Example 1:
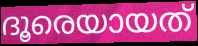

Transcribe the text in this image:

ദൂരെയായത്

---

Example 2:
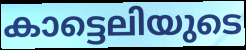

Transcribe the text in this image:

കാട്ടെലിയുടെ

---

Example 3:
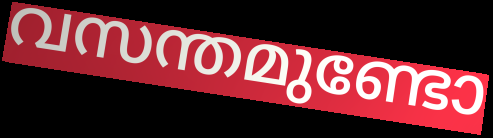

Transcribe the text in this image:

വസന്തമുണ്ടോ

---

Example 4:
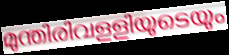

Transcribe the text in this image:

മുന്തിരിവളളിയുടെയും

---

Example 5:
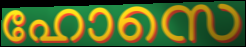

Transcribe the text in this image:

ഹോസെ